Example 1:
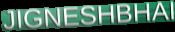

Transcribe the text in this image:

JIGNESHBHAI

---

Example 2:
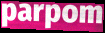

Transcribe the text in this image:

parpom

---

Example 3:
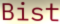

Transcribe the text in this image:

Bist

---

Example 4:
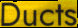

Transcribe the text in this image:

Ducts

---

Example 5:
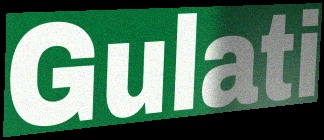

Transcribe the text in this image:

Gulati